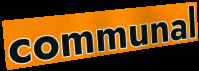
communal